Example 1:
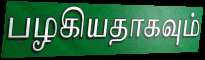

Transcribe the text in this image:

பழகியதாகவும்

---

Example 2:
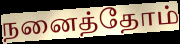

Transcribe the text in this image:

நனைத்தோம்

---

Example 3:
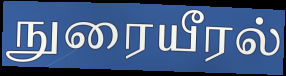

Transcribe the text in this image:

நுரையீரல்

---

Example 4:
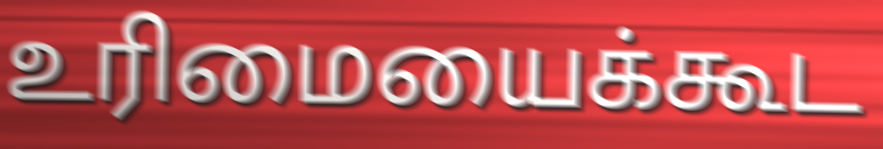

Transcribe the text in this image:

உரிமையைக்கூட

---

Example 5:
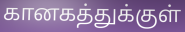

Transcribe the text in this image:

கானகத்துக்குள்